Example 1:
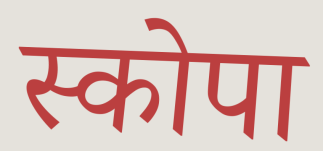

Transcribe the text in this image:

स्कोपा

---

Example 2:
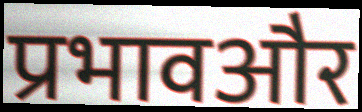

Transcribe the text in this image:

प्रभावऔर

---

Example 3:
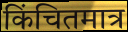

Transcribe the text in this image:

किंचितमात्र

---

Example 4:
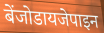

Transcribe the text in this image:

बेंजोडायजेपाइन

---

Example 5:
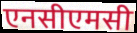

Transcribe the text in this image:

एनसीएमसी